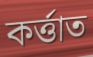
কৰ্ত্তাত